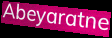
Abeyaratne